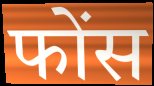
फोंस